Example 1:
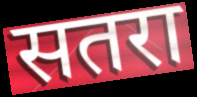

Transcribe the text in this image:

सतरा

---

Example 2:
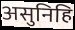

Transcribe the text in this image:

असुनिहि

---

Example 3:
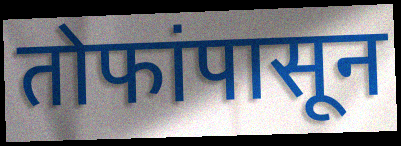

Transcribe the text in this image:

तोफांपासून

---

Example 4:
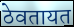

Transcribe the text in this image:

ठेवतायत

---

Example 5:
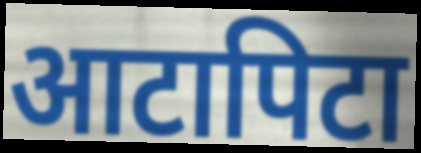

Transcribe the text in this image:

आटापिटा